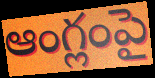
ఆంగ్లంపై